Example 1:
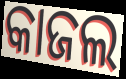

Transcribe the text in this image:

କାଜଲ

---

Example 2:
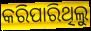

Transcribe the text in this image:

କରିପାରିଥିଲୁ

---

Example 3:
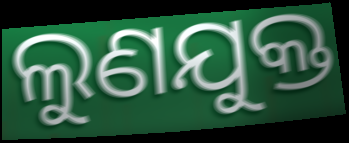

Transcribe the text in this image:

ଲୁଣଯୁକ୍ତ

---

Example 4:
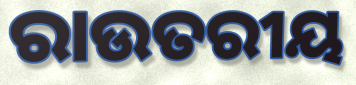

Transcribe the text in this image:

ରାଉତରୀୟ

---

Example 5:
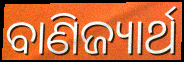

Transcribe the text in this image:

ବାଣିଜ୍ୟାର୍ଥ